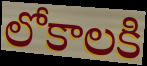
లోకాలకి